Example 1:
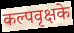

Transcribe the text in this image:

कल्पवृक्षके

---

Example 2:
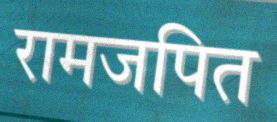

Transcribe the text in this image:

रामजपित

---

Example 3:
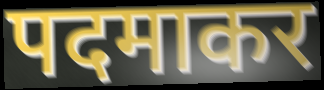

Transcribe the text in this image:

पदमाकर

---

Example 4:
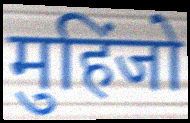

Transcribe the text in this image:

मुहिंजो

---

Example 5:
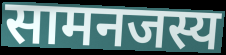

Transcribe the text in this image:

सामनजस्य